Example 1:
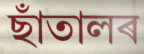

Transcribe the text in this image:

ছাঁতালৰ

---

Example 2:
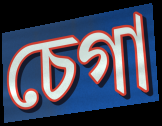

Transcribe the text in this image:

চেগা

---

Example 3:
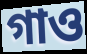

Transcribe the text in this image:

গাও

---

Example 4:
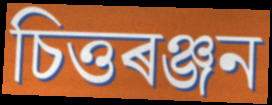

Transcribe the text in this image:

চিত্তৰঞ্জন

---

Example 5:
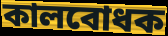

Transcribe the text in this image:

কালবোধক